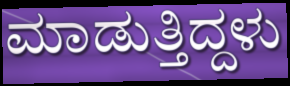
ಮಾಡುತ್ತಿದ್ದಳು